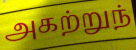
அகற்றுந்